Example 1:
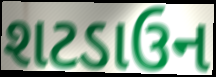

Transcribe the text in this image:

શટડાઉન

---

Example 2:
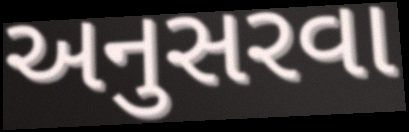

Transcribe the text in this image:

અનુસરવા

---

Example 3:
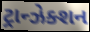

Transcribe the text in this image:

ટ્રાન્ઝેક્શન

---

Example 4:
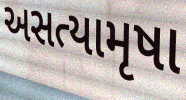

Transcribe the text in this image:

અસત્યામૃષા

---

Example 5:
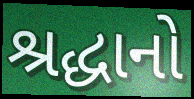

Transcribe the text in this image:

શ્રદ્ધાનો